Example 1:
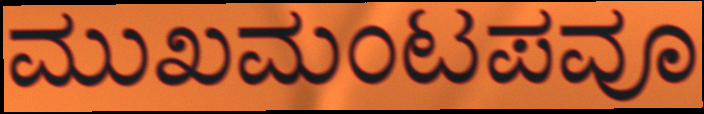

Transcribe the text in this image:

ಮುಖಮಂಟಪವೂ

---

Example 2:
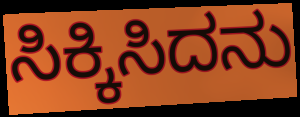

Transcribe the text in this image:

ಸಿಕ್ಕಿಸಿದನು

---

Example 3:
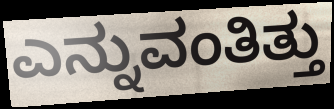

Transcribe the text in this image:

ಎನ್ನುವಂತಿತ್ತು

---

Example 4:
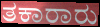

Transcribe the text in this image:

ತಕಾರಾರು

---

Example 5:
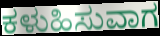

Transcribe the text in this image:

ಕಳುಹಿಸುವಾಗ